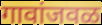
गावांजवळ